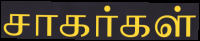
சாகர்கள்